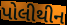
પોલીથીન